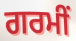
ਗਰਮੀਂ